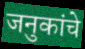
जनुकांचे